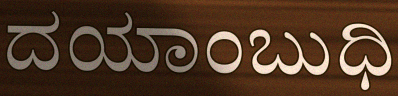
ದಯಾಂಬುಧಿ